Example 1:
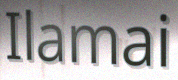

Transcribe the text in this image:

Ilamai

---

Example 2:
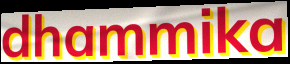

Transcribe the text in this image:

dhammika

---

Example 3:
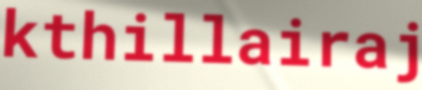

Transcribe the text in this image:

kthillairaj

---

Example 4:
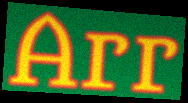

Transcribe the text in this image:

Arr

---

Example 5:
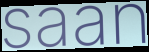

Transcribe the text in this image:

saan